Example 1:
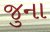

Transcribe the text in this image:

જુના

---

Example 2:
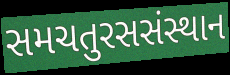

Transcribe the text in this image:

સમચતુરસસંસ્થાન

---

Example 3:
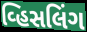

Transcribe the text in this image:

વ્હિસલિંગ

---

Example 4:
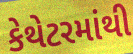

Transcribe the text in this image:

કેથેટરમાંથી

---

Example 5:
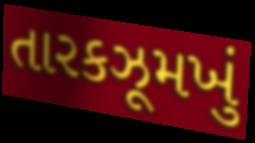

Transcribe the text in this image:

તારકઝૂમખું